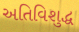
અતિવિશુદ્ધ